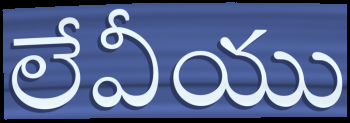
లేవీయు